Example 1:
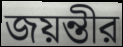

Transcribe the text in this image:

জয়ন্তীর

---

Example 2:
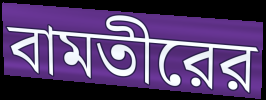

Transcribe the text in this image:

বামতীরের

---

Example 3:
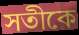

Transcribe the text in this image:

সতীকে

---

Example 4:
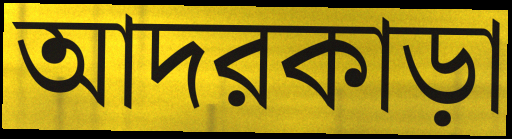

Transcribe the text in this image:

আদরকাড়া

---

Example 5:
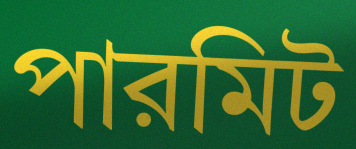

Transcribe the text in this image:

পারমিট